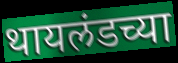
थायलंडच्या